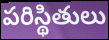
పరిస్థితులు